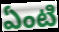
ఏంటి